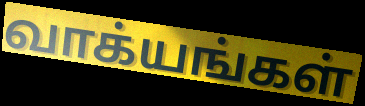
வாக்யங்கள்